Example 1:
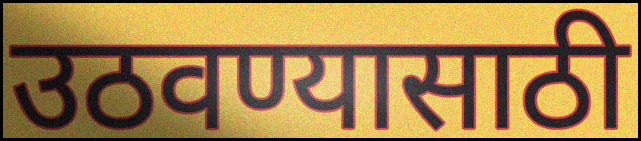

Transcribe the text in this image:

उठवण्यासाठी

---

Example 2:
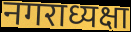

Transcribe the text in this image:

नगराध्यक्षा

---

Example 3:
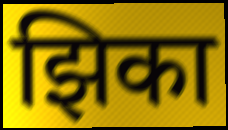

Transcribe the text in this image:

झिका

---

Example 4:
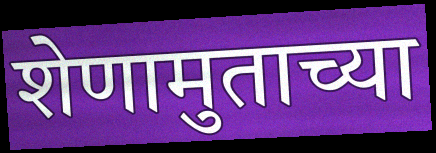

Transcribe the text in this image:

शेणामुताच्या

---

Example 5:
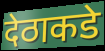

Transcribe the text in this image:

देठाकडे